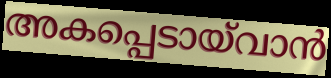
അകപ്പെടായ്‌വാൻ